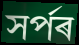
সৰ্পৰ